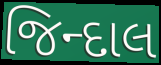
જિન્દાલ